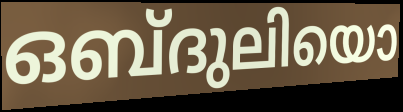
ഒബ്ദുലിയൊ